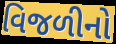
વિજળીનો